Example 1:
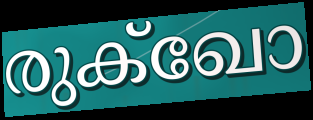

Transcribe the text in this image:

രുക്ഖോ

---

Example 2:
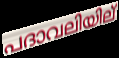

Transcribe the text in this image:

പദാവലിയില്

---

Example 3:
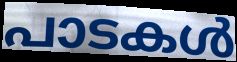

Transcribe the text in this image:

പാടകൾ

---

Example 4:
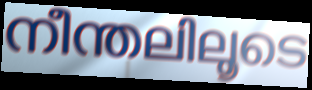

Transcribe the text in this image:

നീന്തലിലൂടെ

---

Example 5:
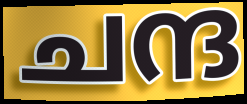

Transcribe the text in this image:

ചന്ദ